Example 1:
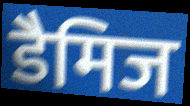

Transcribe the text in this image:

डैमिज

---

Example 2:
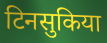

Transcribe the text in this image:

टिनसुकिया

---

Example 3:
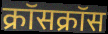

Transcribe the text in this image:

क्रॉसक्रॉस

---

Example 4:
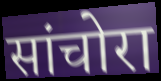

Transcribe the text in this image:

सांचोरा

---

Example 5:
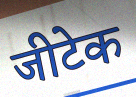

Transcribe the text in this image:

जीटेक